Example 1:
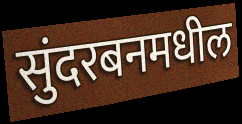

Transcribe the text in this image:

सुंदरबनमधील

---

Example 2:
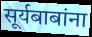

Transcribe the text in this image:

सूर्यबाबांना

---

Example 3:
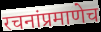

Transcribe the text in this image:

रचनांप्रमाणेच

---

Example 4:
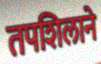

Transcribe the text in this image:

तपशिलाने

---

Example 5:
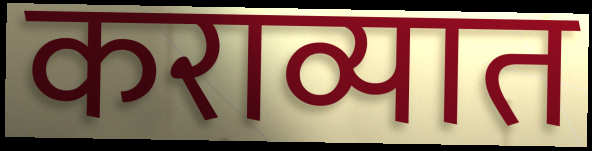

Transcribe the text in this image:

कराव्यात